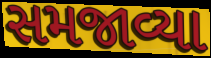
સમજાવ્યા